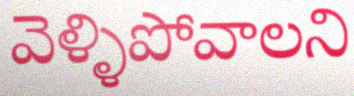
వెళ్ళిపోవాలని